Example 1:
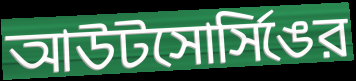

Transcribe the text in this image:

আউটসোর্সিঙের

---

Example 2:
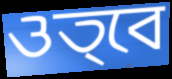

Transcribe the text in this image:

ওত্‌বে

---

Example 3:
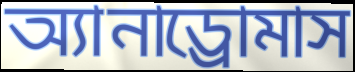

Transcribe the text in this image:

অ্যানাড্রোমাস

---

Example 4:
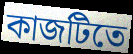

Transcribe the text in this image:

কাজটিতে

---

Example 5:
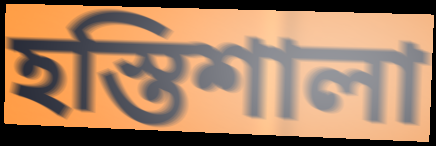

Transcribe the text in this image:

হস্তিশালা